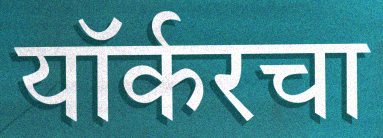
यॉर्करचा